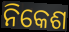
ନିକେଶ